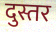
दुस्तर